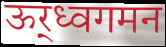
ऊर्ध्वगमन